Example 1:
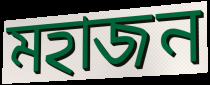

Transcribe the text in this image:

মহাজন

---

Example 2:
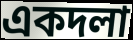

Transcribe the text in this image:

একদলা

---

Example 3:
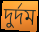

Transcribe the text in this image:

দুর্দম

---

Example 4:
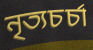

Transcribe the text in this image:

নৃত্যচর্চা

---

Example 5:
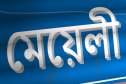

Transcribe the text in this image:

মেয়েলী